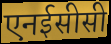
एनईसीसी